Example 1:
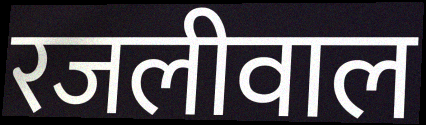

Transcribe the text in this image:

रजलीवाल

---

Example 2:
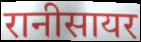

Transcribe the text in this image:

रानीसायर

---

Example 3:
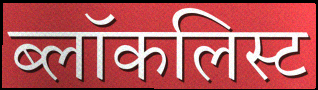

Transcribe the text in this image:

ब्लॉकलिस्ट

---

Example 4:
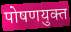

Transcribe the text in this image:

पोषणयुक्‍त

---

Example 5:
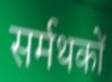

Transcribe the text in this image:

सर्मथकों